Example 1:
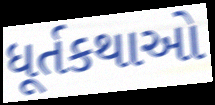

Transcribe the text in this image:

ધૂર્તકથાઓ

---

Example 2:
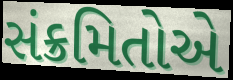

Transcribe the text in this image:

સંક્રમિતોએ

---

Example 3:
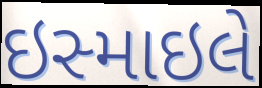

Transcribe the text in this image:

ઇસ્માઇલે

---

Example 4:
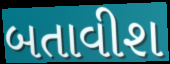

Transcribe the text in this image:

બતાવીશ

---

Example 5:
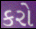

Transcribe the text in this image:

કરો